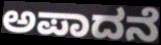
ಅಪಾದನೆ